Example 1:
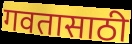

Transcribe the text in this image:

गवतासाठी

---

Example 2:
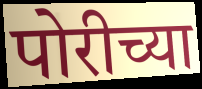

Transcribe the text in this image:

पोरीच्या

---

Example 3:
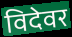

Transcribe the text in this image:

विदेवर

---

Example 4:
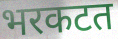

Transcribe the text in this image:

भरकटत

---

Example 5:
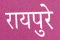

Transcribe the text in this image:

रायपुरे